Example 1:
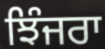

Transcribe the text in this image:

ਝਿੰਜਰਾ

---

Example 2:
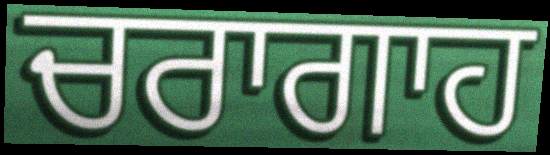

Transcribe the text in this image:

ਚਰਾਗਾਹ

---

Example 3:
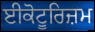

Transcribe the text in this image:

ਈਕੋਟੂਰਿਜ਼ਮ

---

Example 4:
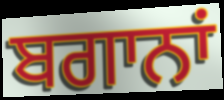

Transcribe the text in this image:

ਬਗਾਨਾਂ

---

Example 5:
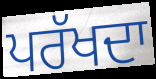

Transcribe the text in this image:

ਪਰੱਖਦਾ